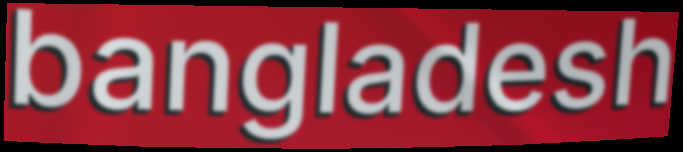
bangladesh